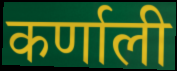
कर्णाली